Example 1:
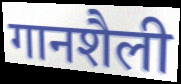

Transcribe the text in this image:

गानशैली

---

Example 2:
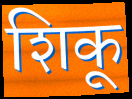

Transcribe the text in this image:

शिकू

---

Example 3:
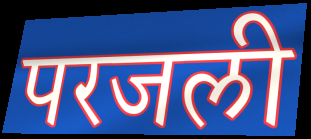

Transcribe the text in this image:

परजली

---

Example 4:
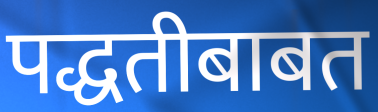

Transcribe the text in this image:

पद्धतीबाबत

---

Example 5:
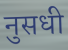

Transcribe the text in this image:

नुसधी